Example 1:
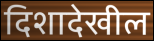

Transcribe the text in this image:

दिशादेखील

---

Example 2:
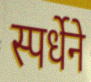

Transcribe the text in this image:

स्पर्धेने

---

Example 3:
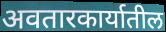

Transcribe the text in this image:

अवतारकार्यातील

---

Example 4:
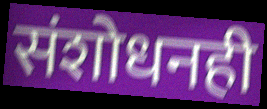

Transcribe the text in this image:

संशोधनही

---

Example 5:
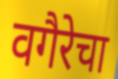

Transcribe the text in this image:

वगैरेचा